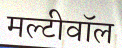
मल्टीवॉल